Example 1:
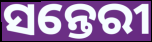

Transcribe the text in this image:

ସନ୍ତେରୀ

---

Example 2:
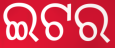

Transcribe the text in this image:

ଇଟର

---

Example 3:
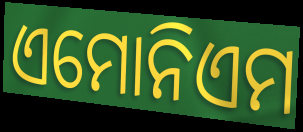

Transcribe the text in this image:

ଏମୋନିଏମ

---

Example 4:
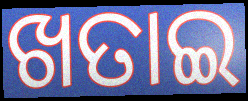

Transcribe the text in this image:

ଖତାଇ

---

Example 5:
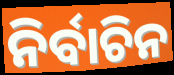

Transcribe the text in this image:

ନିର୍ବାଚିନ